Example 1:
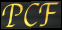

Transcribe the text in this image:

PCF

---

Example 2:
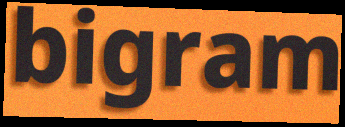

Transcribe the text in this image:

bigram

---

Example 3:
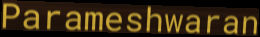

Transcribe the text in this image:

Parameshwaran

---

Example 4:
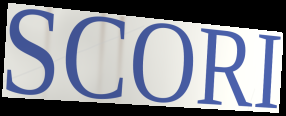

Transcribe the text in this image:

SCORI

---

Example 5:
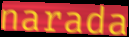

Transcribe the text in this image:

narada